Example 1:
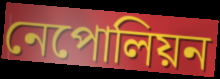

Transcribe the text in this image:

নেপোলিয়ন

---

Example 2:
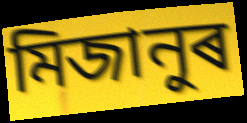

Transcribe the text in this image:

মিজানুৰ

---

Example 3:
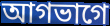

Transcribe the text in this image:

আগভাগে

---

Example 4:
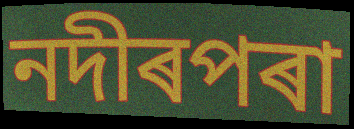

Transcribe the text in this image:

নদীৰপৰা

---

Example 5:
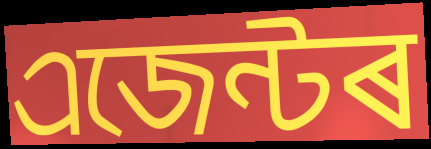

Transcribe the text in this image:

এজেন্টৰ